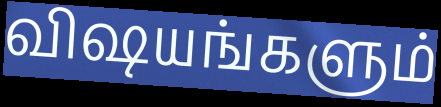
விஷயங்களும்